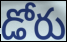
డోరు